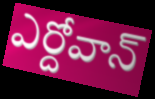
ఎర్దోవాన్